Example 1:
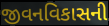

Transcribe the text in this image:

જીવનવિકાસની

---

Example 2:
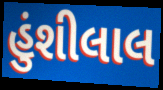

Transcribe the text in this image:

હુંશીલાલ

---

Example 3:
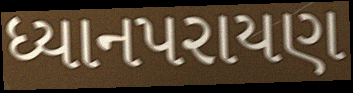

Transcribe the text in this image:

ધ્યાનપરાયણ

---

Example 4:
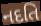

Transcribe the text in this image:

નદતિ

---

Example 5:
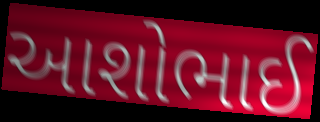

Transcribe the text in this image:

આશોભાઈ